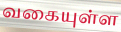
வகையுள்ள